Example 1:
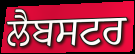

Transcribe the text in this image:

ਲੈਬਸਟਰ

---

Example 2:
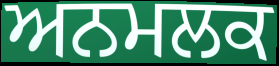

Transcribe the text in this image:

ਅਨਮਲਕ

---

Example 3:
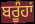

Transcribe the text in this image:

ਬਰੂੰਹਾਂ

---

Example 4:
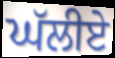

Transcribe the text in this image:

ਘੱਲੀਏ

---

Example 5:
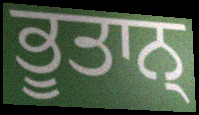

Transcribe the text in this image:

ਭੂਤਾਨ੍